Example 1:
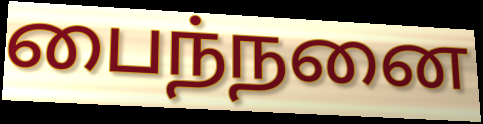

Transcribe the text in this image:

பைந்நனை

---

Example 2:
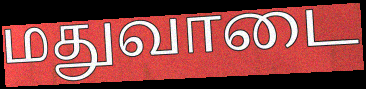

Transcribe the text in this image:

மதுவாடை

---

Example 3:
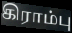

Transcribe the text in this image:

கிராம்பு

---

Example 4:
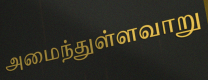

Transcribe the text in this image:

அமைந்துள்ளவாறு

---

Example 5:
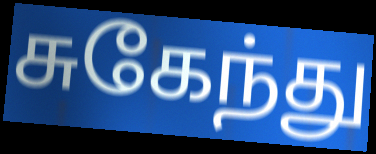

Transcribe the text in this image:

சுகேந்து